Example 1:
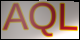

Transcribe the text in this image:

AQL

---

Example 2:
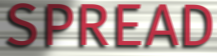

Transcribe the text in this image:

SPREAD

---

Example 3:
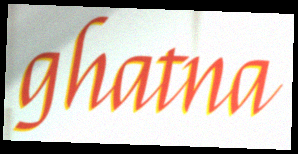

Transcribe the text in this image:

ghatna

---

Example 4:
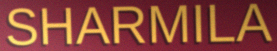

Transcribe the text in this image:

SHARMILA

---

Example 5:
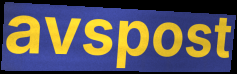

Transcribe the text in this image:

avspost